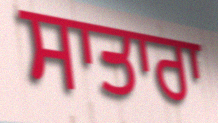
ਸਾਤਾਰਾ